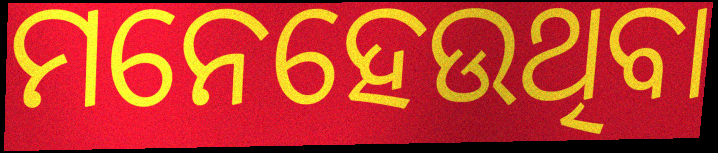
ମନେହେଉଥିବା